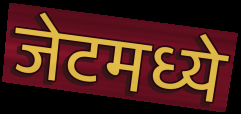
जेटमध्ये